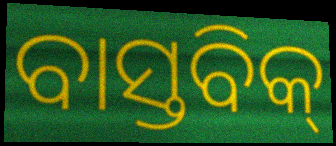
ବାସ୍ତବିକ୍